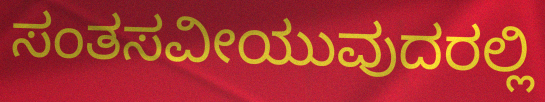
ಸಂತಸವೀಯುವುದರಲ್ಲಿ